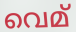
വെമ്